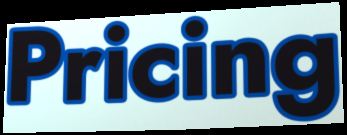
Pricing